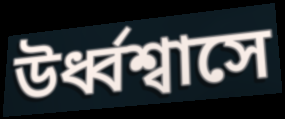
উর্ধ্বশ্বাসে